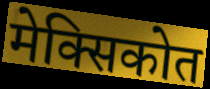
मेक्सिकोत